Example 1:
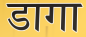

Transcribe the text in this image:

डागा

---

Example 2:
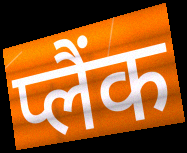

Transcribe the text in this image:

प्लैंक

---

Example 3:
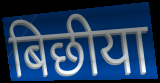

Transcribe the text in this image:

बिछीया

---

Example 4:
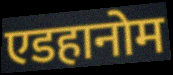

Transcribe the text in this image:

एडहानोम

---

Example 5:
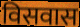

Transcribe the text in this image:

विसवास